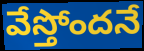
వేస్తోందనే